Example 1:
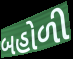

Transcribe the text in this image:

બહોળી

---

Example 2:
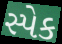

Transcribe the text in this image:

સ્પેક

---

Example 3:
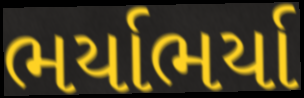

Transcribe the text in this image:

ભર્યાભર્યા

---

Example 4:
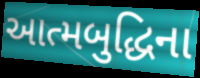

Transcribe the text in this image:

આત્મબુદ્ધિના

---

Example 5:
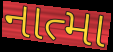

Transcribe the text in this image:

નાત્મા